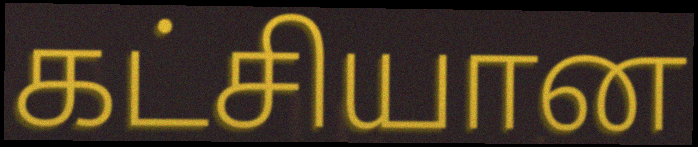
கட்சியான